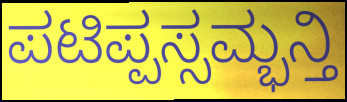
ಪಟಿಪ್ಪಸ್ಸಮ್ಭನ್ತಿ